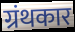
ग्रंथकार